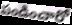
పండించారో